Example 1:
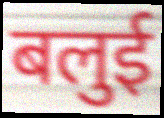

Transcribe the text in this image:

बलुई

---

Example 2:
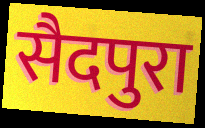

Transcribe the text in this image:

सैदपुरा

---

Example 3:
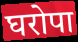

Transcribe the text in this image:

घरोपा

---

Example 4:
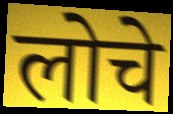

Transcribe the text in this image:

लोचे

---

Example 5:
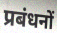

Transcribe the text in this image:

प्रबंधनों